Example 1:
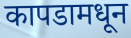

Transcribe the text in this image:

कापडामधून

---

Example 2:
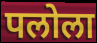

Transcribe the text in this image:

पलोला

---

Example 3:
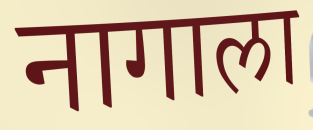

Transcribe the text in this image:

नागाला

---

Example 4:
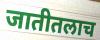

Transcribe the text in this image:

जातीतलाच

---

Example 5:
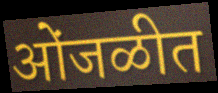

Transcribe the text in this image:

ओंजळीत